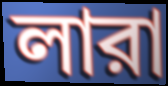
লারা